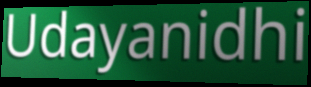
Udayanidhi